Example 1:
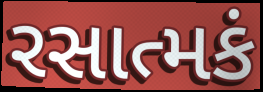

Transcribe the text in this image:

રસાત્મકં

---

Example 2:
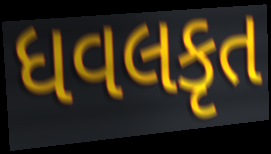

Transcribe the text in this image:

ધવલકૃત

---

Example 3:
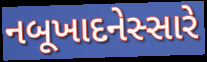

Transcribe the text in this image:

નબૂખાદનેસ્સારે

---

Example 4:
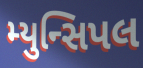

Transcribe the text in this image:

મ્યુન્સિપલ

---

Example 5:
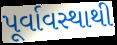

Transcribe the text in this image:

પૂર્વાવસ્થાથી